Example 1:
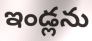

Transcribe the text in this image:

ఇండ్లను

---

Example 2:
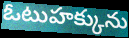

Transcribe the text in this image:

ఓటుహక్కును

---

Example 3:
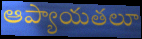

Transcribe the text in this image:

ఆప్యాయతలూ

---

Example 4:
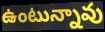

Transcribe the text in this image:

ఉంటున్నావు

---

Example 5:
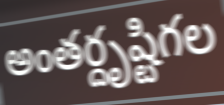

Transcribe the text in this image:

అంతర్దృష్టిగల